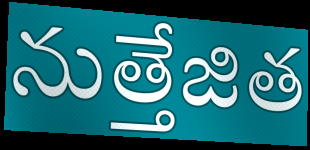
నుత్తేజిత